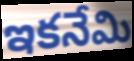
ఇకనేమి